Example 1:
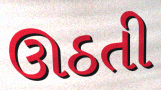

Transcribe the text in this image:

ઊઠતી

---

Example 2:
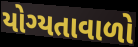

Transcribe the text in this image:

યોગ્યતાવાળો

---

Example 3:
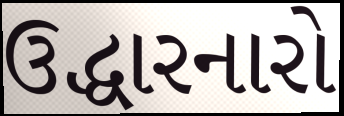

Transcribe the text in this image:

ઉદ્ધારનારો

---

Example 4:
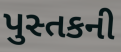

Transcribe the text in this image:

પુસ્તકની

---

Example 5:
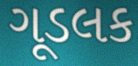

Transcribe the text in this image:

ગૂડલક